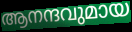
ആനന്ദവുമായ